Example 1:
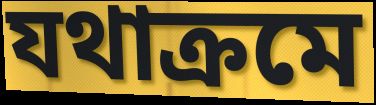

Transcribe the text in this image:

যথাক্ৰমে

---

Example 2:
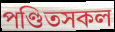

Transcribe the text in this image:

পণ্ডিতসকল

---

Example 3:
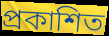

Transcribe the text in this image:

প্ৰকাশিত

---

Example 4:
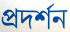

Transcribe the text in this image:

প্ৰদৰ্শন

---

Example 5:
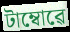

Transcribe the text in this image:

টাম্বোৱে